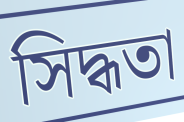
সিদ্ধতা